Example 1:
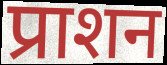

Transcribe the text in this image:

प्राशन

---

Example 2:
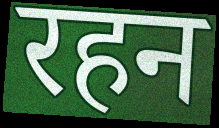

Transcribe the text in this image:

रहन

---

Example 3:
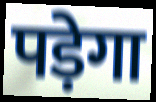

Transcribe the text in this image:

पड़ेगा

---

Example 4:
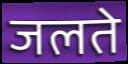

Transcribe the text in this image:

जलते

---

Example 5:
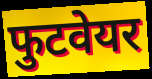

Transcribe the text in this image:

फुटवेयर